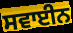
ਸਵਾਈਨ